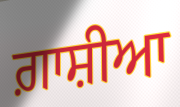
ਗ਼ਾਸ਼ੀਆ